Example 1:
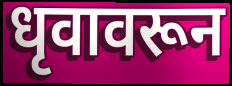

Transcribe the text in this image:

धृवावरून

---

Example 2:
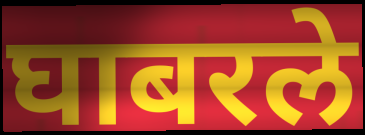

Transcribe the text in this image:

घाबरले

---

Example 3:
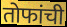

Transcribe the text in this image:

तोफांची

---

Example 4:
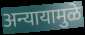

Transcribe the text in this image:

अन्यायामुळे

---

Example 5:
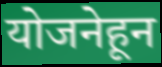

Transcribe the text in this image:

योजनेहून